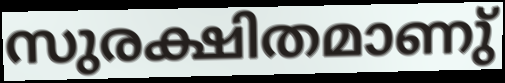
സുരക്ഷിതമാണു്